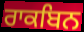
ਰਾਕਬਿਨ